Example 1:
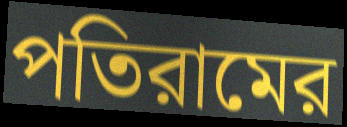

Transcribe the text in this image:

পতিরামের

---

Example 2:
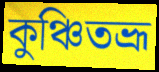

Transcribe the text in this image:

কুঞ্চিতভ্রূ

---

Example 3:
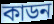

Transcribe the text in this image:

কাডন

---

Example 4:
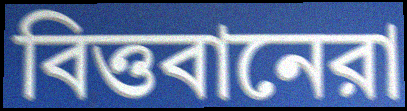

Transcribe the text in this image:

বিত্তবানেরা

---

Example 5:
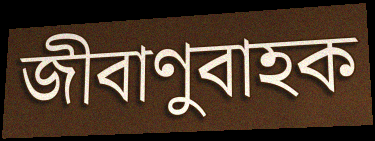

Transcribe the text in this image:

জীবাণুবাহক